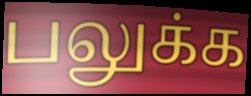
பலுக்க